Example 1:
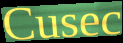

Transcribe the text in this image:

Cusec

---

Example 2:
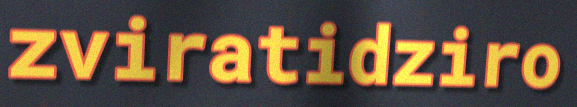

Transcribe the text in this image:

zviratidziro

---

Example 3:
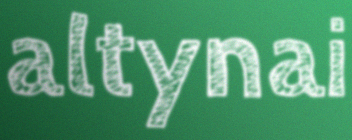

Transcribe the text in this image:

altynai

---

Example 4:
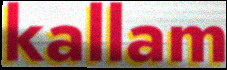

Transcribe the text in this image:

kallam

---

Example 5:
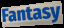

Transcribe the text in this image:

Fantasy